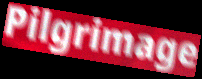
Pilgrimage